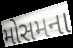
મોસમના